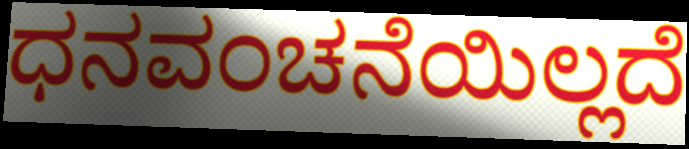
ಧನವಂಚನೆಯಿಲ್ಲದೆ